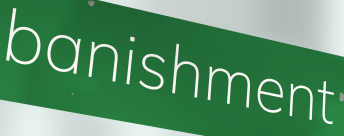
banishment